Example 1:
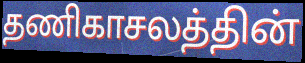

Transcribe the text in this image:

தணிகாசலத்தின்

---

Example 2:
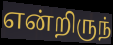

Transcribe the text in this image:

என்றிருந்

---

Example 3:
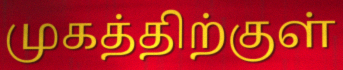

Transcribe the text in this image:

முகத்திற்குள்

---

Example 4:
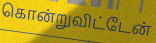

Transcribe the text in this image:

கொன்றுவிட்டேன்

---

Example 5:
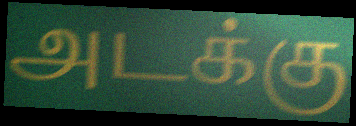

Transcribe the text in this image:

அடக்கு